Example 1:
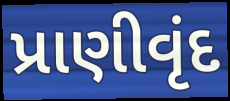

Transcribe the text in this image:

પ્રાણીવૃંદ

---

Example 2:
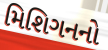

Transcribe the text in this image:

મિશિગનનો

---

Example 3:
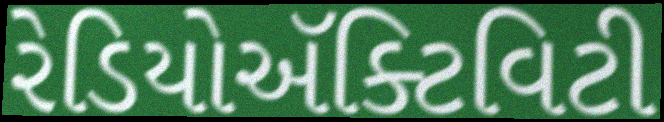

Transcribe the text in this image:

રેડિયોઍક્ટિવિટી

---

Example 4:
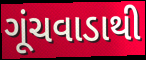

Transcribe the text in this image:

ગૂંચવાડાથી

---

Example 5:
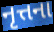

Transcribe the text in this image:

નૃત્તના